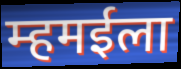
म्हमईला